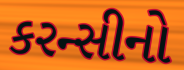
કરન્સીનો